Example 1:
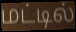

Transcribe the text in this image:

மட்டில்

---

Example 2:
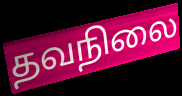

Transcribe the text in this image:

தவநிலை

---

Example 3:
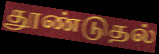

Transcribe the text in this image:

தூண்டுதல்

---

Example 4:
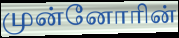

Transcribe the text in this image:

முன்னோரின்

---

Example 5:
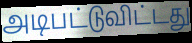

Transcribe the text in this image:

அடிபட்டுவிட்டது